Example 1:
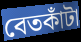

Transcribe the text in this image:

বেতকাঁটা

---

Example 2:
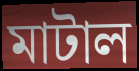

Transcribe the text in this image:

মাটাল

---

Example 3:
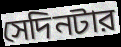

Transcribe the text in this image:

সেদিনটার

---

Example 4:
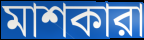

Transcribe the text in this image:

মাশকারা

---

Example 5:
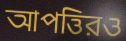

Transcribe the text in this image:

আপত্তিরও